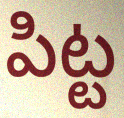
పిట్ట